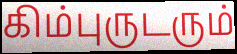
கிம்புருடரும்